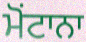
ਮੋਂਟਾਨਾ